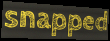
snapped